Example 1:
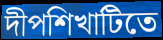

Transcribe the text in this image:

দীপশিখাটিতে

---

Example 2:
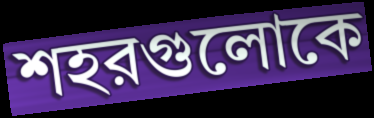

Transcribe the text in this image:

শহরগুলোকে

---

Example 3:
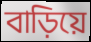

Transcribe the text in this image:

বাড়িয়ে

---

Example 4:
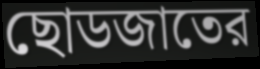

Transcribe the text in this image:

ছোডজাতের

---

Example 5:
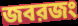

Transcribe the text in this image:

জবরজং